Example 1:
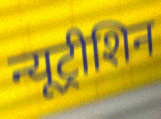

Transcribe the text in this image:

न्यूट्रीशिन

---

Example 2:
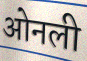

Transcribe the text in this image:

ओनली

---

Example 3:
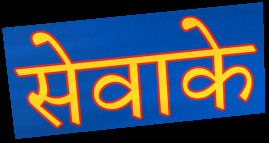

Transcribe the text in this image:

सेवाके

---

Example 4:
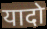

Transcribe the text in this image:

यादो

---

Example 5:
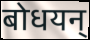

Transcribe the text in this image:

बोधयन्